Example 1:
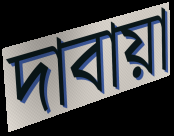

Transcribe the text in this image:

দাবায়া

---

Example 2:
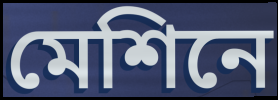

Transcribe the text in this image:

মেশিনে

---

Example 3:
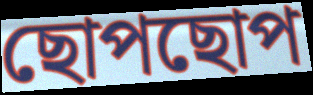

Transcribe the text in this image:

ছোপছোপ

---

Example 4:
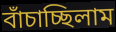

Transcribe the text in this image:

বাঁচাচ্ছিলাম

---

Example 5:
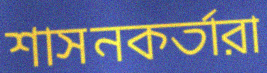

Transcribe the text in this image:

শাসনকর্তারা